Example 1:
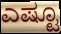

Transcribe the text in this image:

ಎಷ್ಟೂ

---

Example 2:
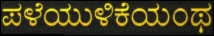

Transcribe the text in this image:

ಪಳೆಯುಳಿಕೆಯಂಥ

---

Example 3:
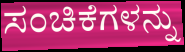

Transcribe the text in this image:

ಸಂಚಿಕೆಗಳನ್ನು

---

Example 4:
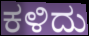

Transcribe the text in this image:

ಕಳಿದು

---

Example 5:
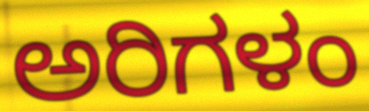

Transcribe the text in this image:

ಅರಿಗಳಂ